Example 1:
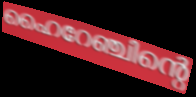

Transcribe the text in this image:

ഹൈറേഞ്ചിന്റെ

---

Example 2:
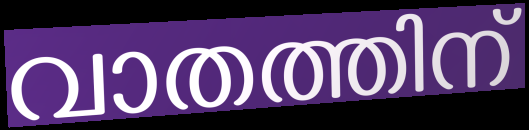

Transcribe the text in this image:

വാതത്തിന്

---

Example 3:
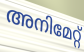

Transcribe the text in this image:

അനിമേറ്റ്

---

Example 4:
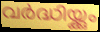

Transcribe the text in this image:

വർദ്ധിയ്ക്കും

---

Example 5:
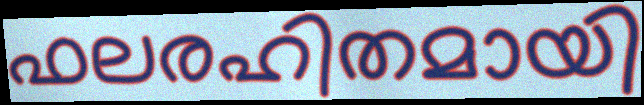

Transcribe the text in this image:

ഫലരഹിതമായി